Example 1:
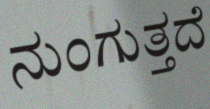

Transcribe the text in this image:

ನುಂಗುತ್ತದೆ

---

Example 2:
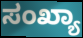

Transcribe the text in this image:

ಸಂಖ್ಯಾ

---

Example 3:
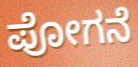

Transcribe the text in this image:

ಪೋಗನೆ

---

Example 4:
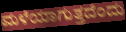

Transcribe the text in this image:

ಮಳೆಯಾಗುತ್ತದೆಂದು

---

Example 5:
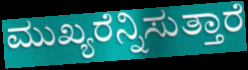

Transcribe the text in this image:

ಮುಖ್ಯರೆನ್ನಿಸುತ್ತಾರೆ